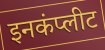
इनकंप्लीट